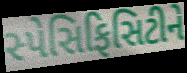
સ્પેસિફિસિટીને